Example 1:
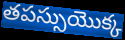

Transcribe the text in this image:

తపస్సుయొక్క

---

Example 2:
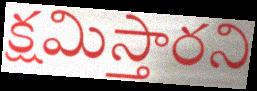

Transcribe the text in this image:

క్షమిస్తారని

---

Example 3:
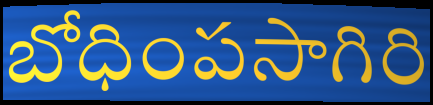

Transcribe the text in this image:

బోధింపసాగిరి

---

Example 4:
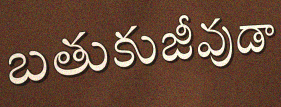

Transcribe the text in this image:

బతుకుజీవుడా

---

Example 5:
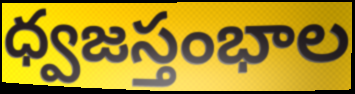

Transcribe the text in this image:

ధ్వజస్తంభాల